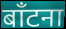
बाँटना